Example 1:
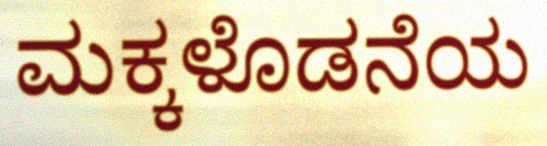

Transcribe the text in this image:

ಮಕ್ಕಳೊಡನೆಯ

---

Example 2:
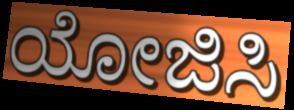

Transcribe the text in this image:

ಯೋಜಿಸಿ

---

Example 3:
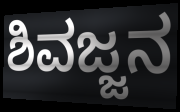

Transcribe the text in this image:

ಶಿವಜ್ಜನ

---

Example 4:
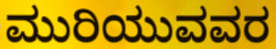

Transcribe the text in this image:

ಮುರಿಯುವವರ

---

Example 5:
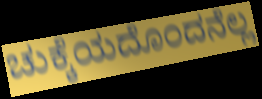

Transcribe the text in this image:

ಚುಕ್ಕೆಯದೊಂದನೆಲ್ಲ